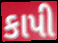
કાપી